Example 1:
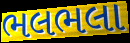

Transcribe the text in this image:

ભલભલા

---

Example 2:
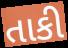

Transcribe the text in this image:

તાકી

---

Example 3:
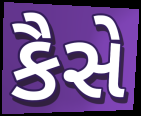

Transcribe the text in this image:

કૈસે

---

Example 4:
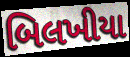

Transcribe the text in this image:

બિલખીયા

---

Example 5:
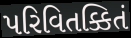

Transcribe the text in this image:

પરિવિતક્કિતં